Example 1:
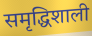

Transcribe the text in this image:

समृद्धिशाली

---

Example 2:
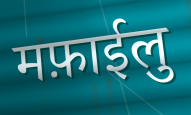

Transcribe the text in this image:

मफ़ाईलु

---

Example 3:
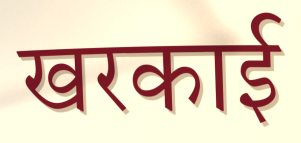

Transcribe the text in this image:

खरकाई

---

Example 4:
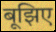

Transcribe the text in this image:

बूझिए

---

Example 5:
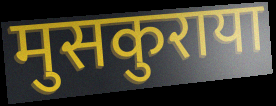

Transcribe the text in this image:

मुसकुराया